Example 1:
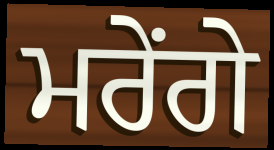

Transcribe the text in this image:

ਮਰੇਂਗੇ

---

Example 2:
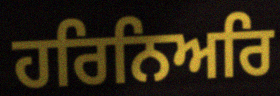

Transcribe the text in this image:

ਹਰਿਨਿਅਰਿ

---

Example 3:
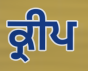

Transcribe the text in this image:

ਕ੍ਰੀਪ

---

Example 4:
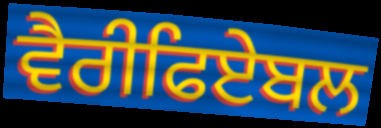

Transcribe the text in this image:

ਵੈਰੀਫਿਏਬਲ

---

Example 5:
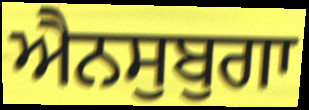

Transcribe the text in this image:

ਐਨਸੁਬੁਗਾ